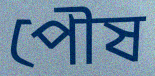
পৌষ